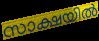
സാക്ഷയിൽ